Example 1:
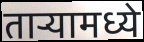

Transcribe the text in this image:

ताऱ्यामध्ये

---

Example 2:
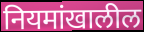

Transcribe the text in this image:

नियमांखालील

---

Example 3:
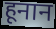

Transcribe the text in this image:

हूनान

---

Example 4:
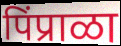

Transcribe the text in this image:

पिंप्राळा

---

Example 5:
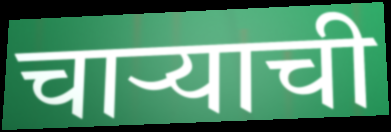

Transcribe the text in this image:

चाऱ्याची